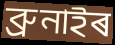
ব্ৰুনাইৰ